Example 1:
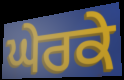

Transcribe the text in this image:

ਘੇਰਕੇ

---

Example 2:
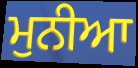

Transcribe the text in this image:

ਮੁਨੀਆ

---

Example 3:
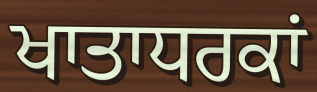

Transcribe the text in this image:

ਖਾਤਾਧਰਕਾਂ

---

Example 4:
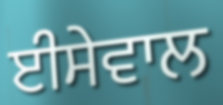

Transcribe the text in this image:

ਈਸੇਵਾਲ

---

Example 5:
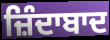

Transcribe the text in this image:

ਜ਼ਿੰਦਾਬਾਦ